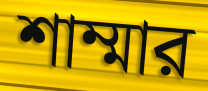
শাম্মার